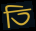
তি